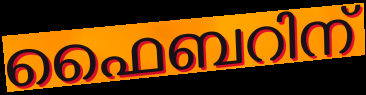
ഫൈബറിന്